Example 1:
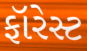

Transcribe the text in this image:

ફૉરેસ્ટ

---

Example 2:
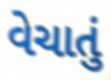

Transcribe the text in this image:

વેચાતું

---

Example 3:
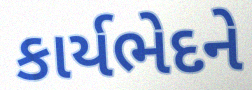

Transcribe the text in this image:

કાર્યભેદને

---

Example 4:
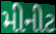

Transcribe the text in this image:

મીનીટ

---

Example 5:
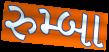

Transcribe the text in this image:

રુમ્બા